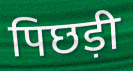
पिछड़ी